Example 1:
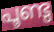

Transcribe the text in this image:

പൂണ്ടു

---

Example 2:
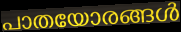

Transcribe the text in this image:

പാതയോരങ്ങൾ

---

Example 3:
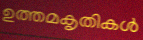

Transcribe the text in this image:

ഉത്തമകൃതികൾ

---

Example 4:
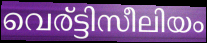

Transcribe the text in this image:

വെര്ട്ടിസീലിയം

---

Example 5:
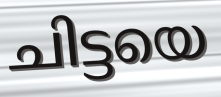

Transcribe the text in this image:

ചിട്ടയെ